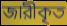
জারীকৃত